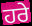
ਹਰੇ